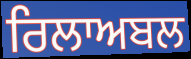
ਰਿਲਾਅਬਲ